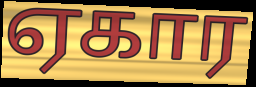
ஏகார